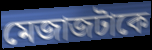
মেজাজটাকে